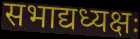
सभाद्यध्यक्षः